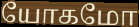
யோகமோ